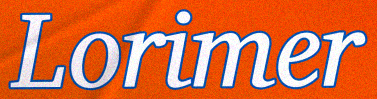
Lorimer